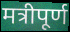
मत्रीपूर्ण